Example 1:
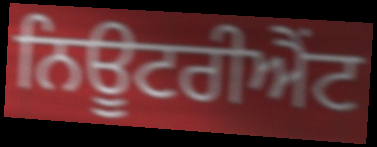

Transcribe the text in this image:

ਨਿਊਟਰੀਐਂਟ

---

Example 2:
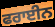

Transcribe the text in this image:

ਫਰਾਈਨ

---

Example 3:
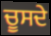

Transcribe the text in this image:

ਚੂਸਦੇ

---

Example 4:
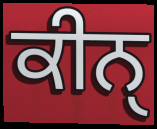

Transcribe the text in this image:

ਕੀਨੑ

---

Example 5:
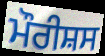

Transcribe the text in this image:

ਮੌਰੀਸ਼ਸ